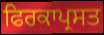
ਫਿਰਕਾਪ੍ਰਸਤ